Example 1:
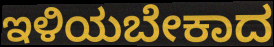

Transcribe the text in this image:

ಇಳಿಯಬೇಕಾದ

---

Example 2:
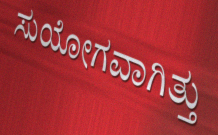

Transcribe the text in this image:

ಸುಯೋಗವಾಗಿತ್ತು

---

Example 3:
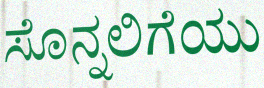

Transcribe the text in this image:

ಸೊನ್ನಲಿಗೆಯು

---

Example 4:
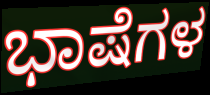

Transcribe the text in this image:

ಭಾಷೆಗಳ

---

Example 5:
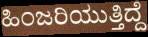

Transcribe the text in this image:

ಹಿಂಜರಿಯುತ್ತಿದ್ದೆ